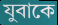
যুবাকে